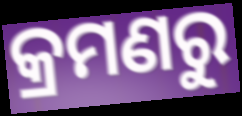
କ୍ରମଣରୁ